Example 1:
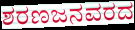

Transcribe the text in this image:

ಶರಣಜನವರದ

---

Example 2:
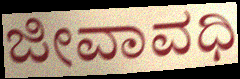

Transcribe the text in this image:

ಜೀವಾವಧಿ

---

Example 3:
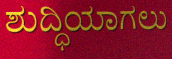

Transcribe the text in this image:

ಶುದ್ಧಿಯಾಗಲು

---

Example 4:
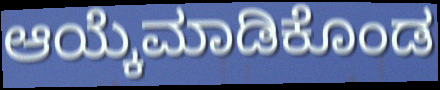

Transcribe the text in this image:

ಆಯ್ಕೆಮಾಡಿಕೊಂಡ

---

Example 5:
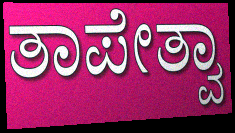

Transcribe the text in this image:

ತಾಪೇತ್ವಾ